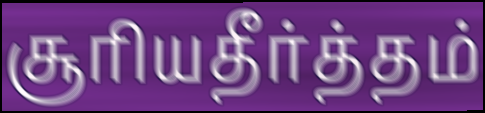
சூரியதீர்த்தம்